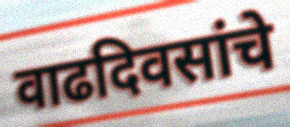
वाढदिवसांचे